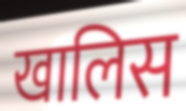
खालिस